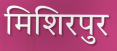
मिशिरपुर